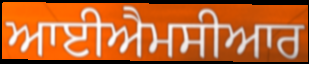
ਆਈਐਮਸੀਆਰ